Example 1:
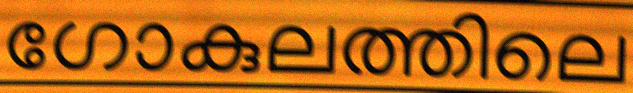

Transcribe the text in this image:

ഗോകുലത്തിലെ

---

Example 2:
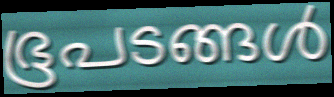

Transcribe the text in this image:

ഭൂപടങ്ങൾ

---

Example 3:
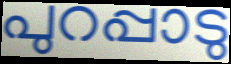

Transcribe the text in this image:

പുറപ്പാടു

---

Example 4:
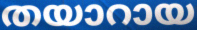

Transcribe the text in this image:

തയാറായ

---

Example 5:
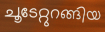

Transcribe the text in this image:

ചൂടേറ്റുറങ്ങിയ